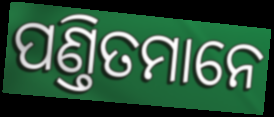
ପଣ୍ତିତମାନେ